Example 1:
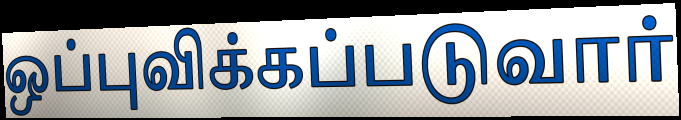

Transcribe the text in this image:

ஒப்புவிக்கப்படுவார்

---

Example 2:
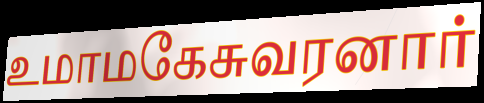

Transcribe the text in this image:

உமாமகேசுவரனார்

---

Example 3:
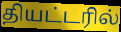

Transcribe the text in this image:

தியட்டரில்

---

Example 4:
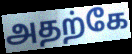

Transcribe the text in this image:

அதற்கே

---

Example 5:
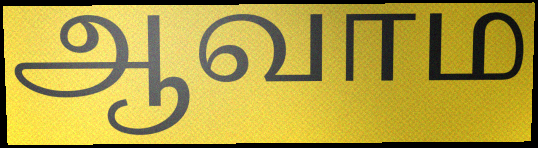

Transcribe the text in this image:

ஆவாம